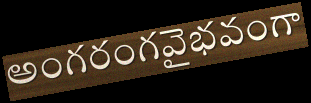
అంగరంగవైభవంగా